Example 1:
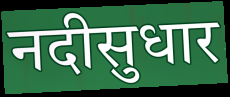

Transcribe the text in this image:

नदीसुधार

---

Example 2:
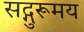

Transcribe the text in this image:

सद्गुरूमय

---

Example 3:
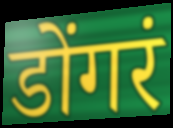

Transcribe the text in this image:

डोंगरं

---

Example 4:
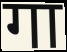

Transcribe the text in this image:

गा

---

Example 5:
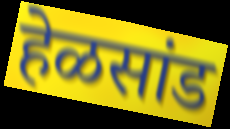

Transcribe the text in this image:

हेळसांड